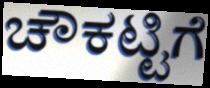
ಚೌಕಟ್ಟಿಗೆ